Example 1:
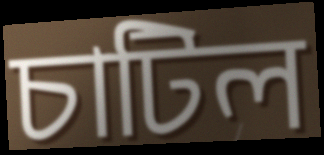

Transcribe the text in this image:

চাটিল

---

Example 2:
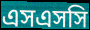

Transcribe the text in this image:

এসএসসি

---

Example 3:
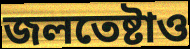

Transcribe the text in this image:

জলতেষ্টাও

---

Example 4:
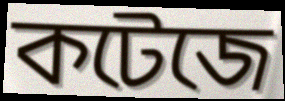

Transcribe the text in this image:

কটেজে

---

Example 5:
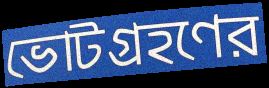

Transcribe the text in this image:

ভোটগ্রহণের